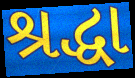
શ્રદ્ધા